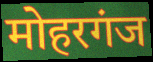
मोहरगंज